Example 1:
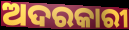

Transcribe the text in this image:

ଅଦରକାରୀ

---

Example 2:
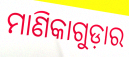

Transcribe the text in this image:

ମାଣିକାଗୁଡ଼ାର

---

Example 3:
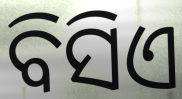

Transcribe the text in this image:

ବିସିଏ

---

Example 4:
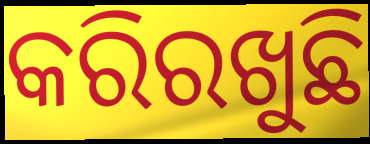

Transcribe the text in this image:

କରିରଖୁଛି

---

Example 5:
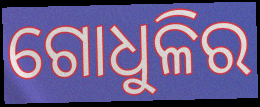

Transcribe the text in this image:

ଗୋଧୁଳିର